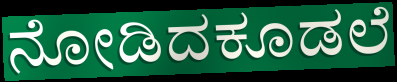
ನೋಡಿದಕೂಡಲೆ